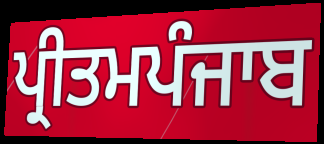
ਪ੍ਰੀਤਮਪੰਜਾਬ